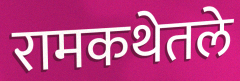
रामकथेतले